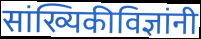
सांख्यिकीविज्ञांनी